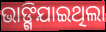
ଭାଙ୍ଗିଯାଇଥିଲା